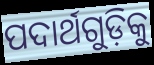
ପଦାର୍ଥଗୁଡ଼ିକୁ